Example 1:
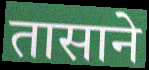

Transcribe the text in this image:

तासाने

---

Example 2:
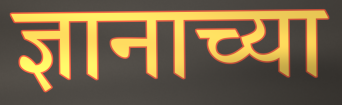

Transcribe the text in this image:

ज्ञानाच्या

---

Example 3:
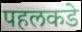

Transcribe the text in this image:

पहलकडे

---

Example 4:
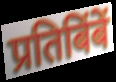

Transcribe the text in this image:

प्रतिबिंबें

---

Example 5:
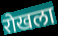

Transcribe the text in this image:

रोखला